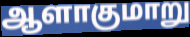
ஆளாகுமாறு